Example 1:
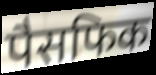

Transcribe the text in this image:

पैसफिक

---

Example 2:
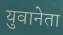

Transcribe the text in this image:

युवानेता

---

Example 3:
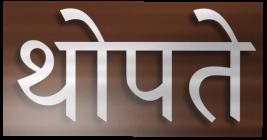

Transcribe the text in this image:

थोपते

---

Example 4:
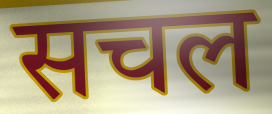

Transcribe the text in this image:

सचल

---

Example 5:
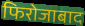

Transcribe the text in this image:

फिरोजाबाद